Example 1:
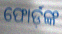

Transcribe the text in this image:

ଫୋର୍ଡ଼ଙ୍କ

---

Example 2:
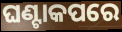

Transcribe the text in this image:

ଘଣ୍ଟାକପରେ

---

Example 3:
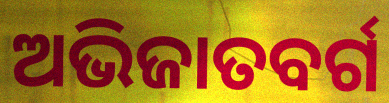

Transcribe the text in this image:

ଅଭିଜାତବର୍ଗ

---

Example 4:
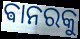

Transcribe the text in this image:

ଵାନରକୁ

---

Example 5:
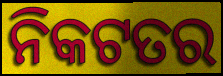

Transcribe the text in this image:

ନିକଟତର